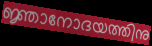
ജ്ഞാനോദയത്തിനു